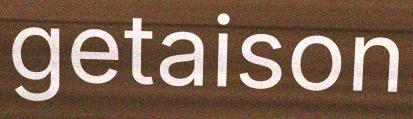
getaison